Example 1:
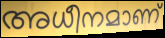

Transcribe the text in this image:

അധീനമാണ്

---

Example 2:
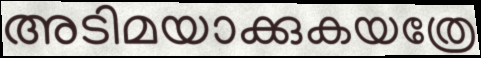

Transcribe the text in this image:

അടിമയാക്കുകയത്രേ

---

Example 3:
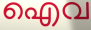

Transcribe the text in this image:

ഐവ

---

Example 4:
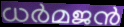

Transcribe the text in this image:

ധർമജൻ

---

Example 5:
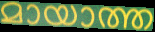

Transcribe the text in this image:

മായാത്ത